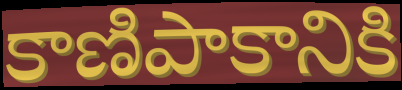
కాణిపాకానికి